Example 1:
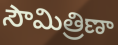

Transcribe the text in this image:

సౌమిత్రిణా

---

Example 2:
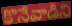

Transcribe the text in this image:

కొనేవాడిని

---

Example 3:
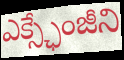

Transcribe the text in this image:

ఎక్స్ఛేంజీని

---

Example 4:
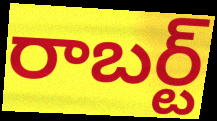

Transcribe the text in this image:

రాబర్ట్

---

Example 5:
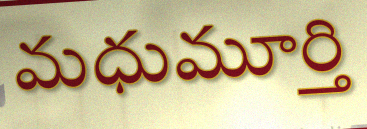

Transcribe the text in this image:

మధుమూర్తి